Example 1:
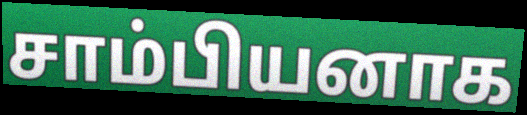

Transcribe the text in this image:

சாம்பியனாக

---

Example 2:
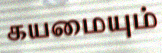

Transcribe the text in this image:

கயமையும்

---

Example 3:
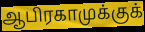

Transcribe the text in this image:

ஆபிரகாமுக்குக்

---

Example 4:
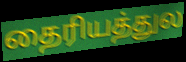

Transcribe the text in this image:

தைரியத்துல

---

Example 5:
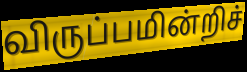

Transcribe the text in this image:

விருப்பமின்றிச்